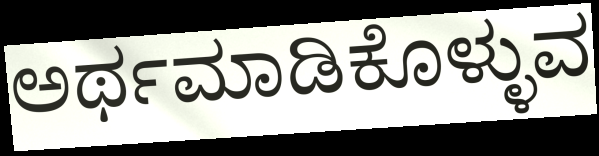
ಅರ್ಥಮಾಡಿಕೊಳ್ಳುವ